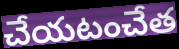
చేయటంచేత